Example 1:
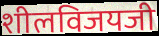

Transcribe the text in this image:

शीलविजयजी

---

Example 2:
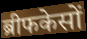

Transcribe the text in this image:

ब्रीफकेसों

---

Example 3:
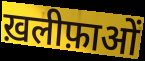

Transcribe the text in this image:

ख़लीफ़ाओं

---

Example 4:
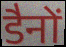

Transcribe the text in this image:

डैनों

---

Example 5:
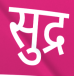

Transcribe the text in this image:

सुद्र